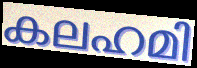
കലഹമി